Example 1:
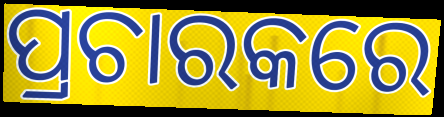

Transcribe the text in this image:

ପ୍ରଚାରକରେ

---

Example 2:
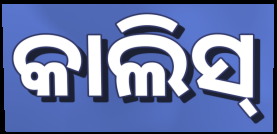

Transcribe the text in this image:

କାଲିସ୍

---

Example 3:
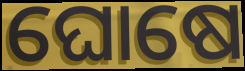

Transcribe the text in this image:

ଘୋଷେ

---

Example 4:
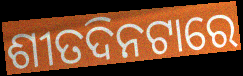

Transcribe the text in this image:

ଶୀତଦିନଟାରେ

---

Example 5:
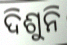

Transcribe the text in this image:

ଦିଶୁନି